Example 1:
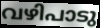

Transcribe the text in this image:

വഴിപാടു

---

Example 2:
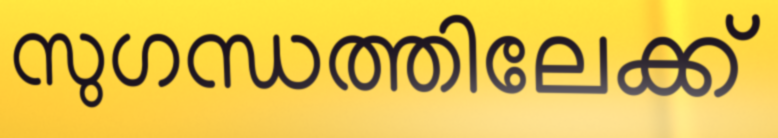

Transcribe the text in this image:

സുഗന്ധത്തിലേക്ക്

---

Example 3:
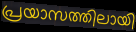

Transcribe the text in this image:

പ്രയാസത്തിലായി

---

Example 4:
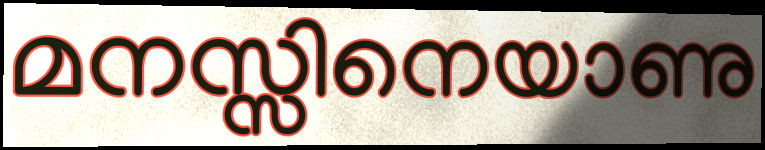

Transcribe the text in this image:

മനസ്സിനെയാണു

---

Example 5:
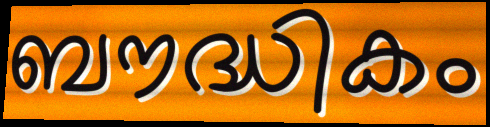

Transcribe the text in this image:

ബൗദ്ധികം